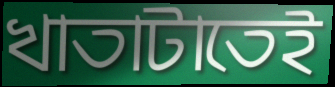
খাতাটাতেই